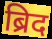
ब्रिद